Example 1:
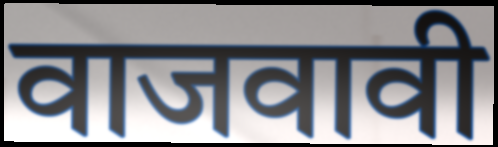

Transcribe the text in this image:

वाजवावी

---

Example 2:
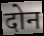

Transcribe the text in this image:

दोन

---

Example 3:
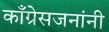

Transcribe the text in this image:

काँग्रेसजनांनी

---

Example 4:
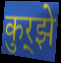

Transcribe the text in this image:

कुर्झे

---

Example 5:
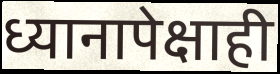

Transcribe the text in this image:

ध्यानापेक्षाही